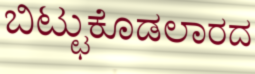
ಬಿಟ್ಟುಕೊಡಲಾರದ